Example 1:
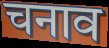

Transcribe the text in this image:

चनाव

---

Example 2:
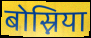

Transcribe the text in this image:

बोस्निया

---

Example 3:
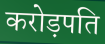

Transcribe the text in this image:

करोड़पति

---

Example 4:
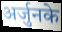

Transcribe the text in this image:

अर्जुनके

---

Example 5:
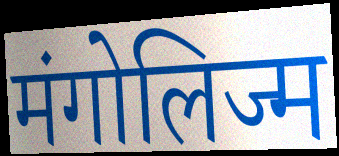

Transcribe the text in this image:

मंगोलिज्म